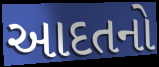
આદતનો